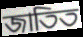
জাতিত